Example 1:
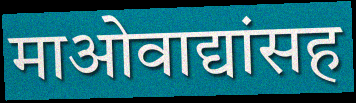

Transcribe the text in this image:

माओवाद्यांसह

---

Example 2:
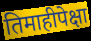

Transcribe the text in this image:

तिमाहीपेक्षा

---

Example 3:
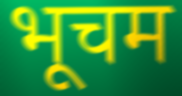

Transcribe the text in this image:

भूचम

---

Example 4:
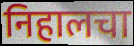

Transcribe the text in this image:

निहालचा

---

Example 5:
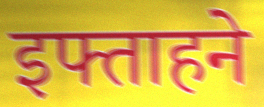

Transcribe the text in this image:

इफ्ताहने